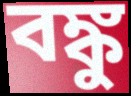
বঙ্কু